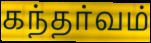
கந்தர்வம்